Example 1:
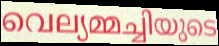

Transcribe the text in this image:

വെല്യമ്മച്ചിയുടെ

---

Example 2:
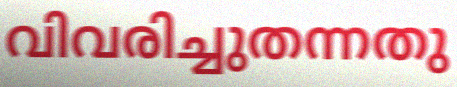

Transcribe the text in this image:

വിവരിച്ചുതന്നതു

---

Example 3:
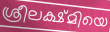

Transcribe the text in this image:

ശ്രീലക്ഷ്മിയെ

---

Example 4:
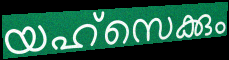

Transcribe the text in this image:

യഹ്സെക്കും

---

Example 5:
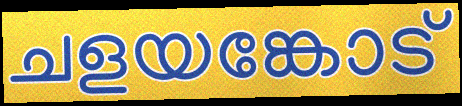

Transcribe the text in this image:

ചളയങ്കോട്